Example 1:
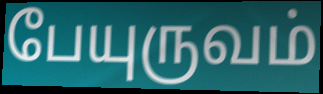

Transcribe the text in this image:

பேயுருவம்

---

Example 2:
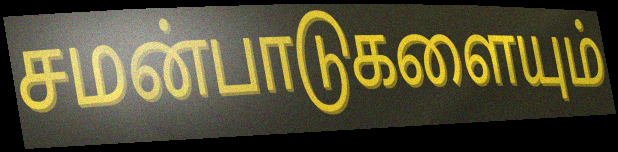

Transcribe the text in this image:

சமன்பாடுகளையும்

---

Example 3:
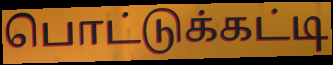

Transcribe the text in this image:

பொட்டுக்கட்டி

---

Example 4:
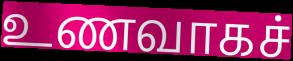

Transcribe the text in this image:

உணவாகச்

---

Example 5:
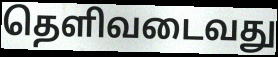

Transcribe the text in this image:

தெளிவடைவது